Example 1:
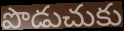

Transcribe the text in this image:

పొడుచుకు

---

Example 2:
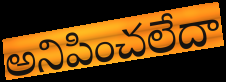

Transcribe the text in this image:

అనిపించలేదా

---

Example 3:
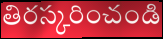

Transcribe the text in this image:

తిరస్కరించండి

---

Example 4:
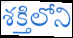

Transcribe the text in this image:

శక్తిలోని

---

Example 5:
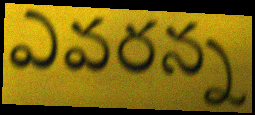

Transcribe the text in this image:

ఎవరన్న